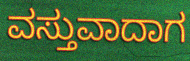
ವಸ್ತುವಾದಾಗ